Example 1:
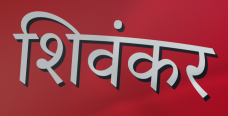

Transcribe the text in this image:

शिवंकर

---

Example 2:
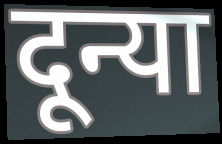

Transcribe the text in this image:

दून्या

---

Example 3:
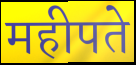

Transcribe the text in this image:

महीपते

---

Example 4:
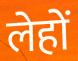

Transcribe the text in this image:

लेहों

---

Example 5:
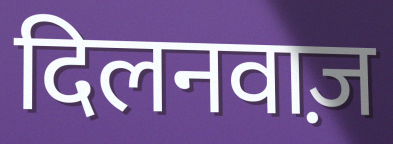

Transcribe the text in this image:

दिलनवाज़